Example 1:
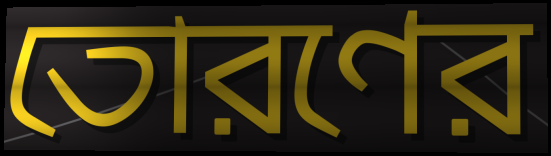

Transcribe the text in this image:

তোরণের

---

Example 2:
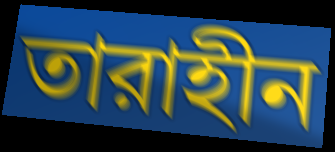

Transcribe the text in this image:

তারাহীন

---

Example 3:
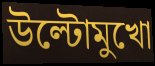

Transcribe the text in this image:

উল্টোমুখো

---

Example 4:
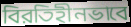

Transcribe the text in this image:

বিরতিহীনভাবে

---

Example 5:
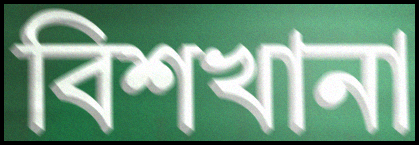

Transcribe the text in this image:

বিশখানা